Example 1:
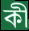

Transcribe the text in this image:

কী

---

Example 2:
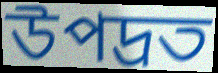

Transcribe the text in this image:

উপদ্রত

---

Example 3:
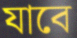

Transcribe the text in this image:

যাবে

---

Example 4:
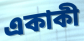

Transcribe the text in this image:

একাকী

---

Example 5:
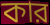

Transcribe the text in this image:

কার